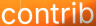
contrib